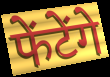
फेंटेंगे